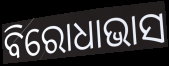
ବିରୋଧାଭାସ